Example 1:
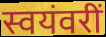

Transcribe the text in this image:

स्वयंवरीं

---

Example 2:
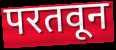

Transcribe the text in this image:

परतवून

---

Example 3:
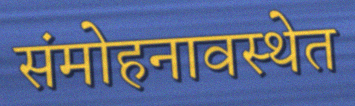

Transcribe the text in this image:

संमोहनावस्थेत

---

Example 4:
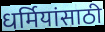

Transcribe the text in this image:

धर्मियांसाठी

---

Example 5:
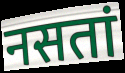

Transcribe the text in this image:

नसतां